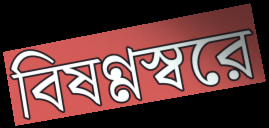
বিষণ্ণস্বরে